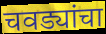
चवड्यांचा